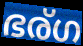
ഭര്ഗ